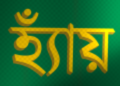
হ্যাঁয়